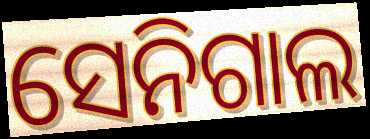
ସେନିଗାଲ